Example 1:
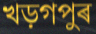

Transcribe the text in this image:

খড়গপুৰ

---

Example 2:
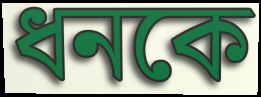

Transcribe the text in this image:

ধনকে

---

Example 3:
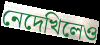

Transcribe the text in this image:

নেদেখিলেও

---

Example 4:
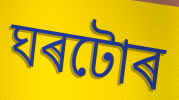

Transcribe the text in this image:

ঘৰটোৰ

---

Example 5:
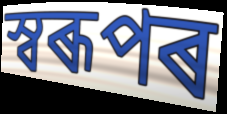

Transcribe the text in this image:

স্বৰূপৰ